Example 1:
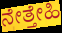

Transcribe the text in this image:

ನೇತ್ತೇಹಿ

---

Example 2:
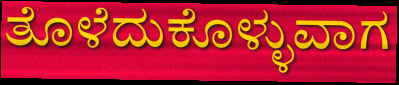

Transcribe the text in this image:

ತೊಳೆದುಕೊಳ್ಳುವಾಗ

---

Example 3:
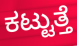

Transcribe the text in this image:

ಕಟ್ಟುತ್ತೆ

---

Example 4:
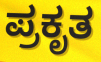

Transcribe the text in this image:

ಪ್ರಕೃತ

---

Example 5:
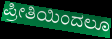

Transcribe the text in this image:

ಪ್ರೀತಿಯಿಂದಲೂ